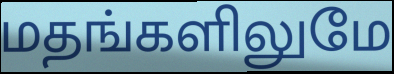
மதங்களிலுமே